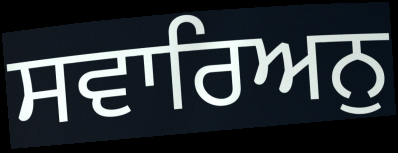
ਸਵਾਰਿਅਨੁ